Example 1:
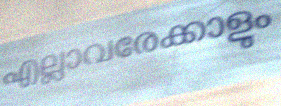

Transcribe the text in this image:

എല്ലാവരേക്കാളും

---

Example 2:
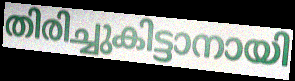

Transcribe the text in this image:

തിരിച്ചുകിട്ടാനായി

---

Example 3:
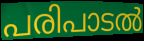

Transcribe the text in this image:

പരിപാടൽ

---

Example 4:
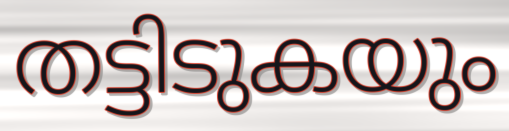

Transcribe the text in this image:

തട്ടിടുകയും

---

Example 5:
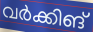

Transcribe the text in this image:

വർക്കിങ്